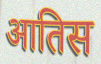
आतिस